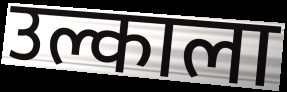
उल्काला